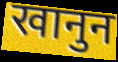
खानुन